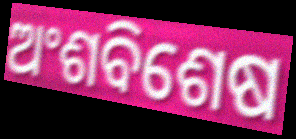
ଅଂଶବିଶେଷ